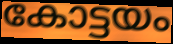
കോട്ടയം